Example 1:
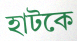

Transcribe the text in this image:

হাটকে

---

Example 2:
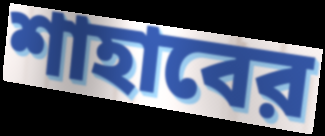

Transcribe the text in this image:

শাহাবের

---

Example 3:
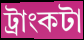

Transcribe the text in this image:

ট্রাংকটা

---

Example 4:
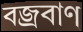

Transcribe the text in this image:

বজ্রবাণ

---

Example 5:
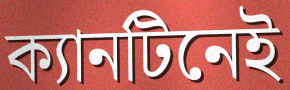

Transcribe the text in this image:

ক্যানটিনেই